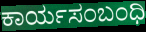
ಕಾರ್ಯಸಂಬಂಧಿ